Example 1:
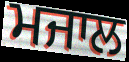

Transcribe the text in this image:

ਮਜਾਲ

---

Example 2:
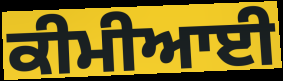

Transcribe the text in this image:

ਕੀਮੀਆਈ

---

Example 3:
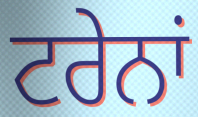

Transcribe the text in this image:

ਟਰੇਨਾਂ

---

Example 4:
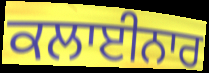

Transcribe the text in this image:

ਕਲਾਈਨਾਰ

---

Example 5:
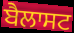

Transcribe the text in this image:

ਬੈਲਾਸਟ